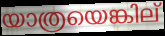
യാത്രയെങ്കില്